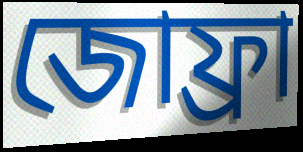
জোফ্রা